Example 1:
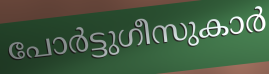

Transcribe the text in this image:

പോർട്ടുഗീസുകാർ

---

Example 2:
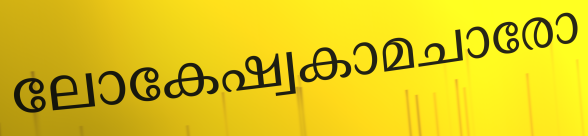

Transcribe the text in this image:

ലോകേഷ്വകാമചാരോ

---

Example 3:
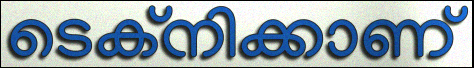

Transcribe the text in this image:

ടെക്നിക്കാണ്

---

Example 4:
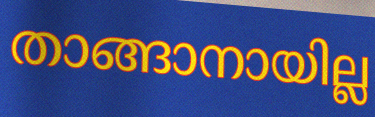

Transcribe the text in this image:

താങ്ങാനായില്ല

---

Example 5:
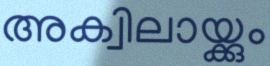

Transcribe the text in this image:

അക്വിലായ്ക്കും